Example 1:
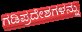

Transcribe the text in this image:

ಗಡಿಪ್ರದೇಶಗಳನ್ನು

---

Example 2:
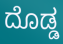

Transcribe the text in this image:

ದೊಡ್ಡ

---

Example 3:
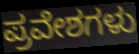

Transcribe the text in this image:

ಪ್ರವೇಶಗಳು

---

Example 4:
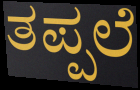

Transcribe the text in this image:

ತಪ್ಪಲೆ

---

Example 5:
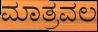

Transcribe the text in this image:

ಮಾತ್ರವಲ